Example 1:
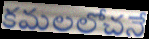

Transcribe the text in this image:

కమలలోచనే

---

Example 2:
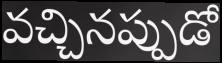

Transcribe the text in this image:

వచ్చినప్పుడో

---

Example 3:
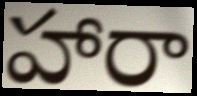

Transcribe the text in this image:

హారా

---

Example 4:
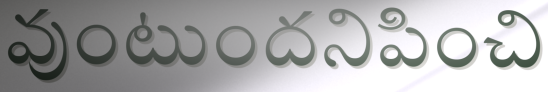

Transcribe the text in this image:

వుంటుందనిపించి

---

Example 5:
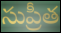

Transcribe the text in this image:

సుప్రీత